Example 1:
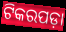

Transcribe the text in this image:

ଟିକରପଡ଼ା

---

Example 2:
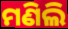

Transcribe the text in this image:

ମଣିଲି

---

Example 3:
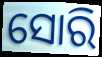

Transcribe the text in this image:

ସୋରି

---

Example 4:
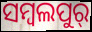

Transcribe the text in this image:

ସମ୍ବଲପୁର୍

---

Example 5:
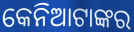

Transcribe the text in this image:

କେନିଆଟାଙ୍କର